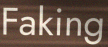
Faking